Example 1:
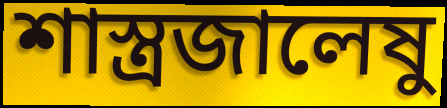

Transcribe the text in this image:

শাস্ত্রজালেষু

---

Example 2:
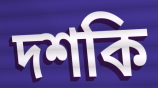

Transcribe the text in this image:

দশকি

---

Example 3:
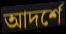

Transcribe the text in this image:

আদর্শে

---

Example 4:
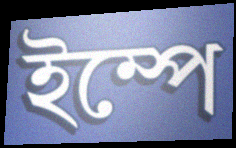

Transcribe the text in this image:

ইম্পে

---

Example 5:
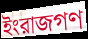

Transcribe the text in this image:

ইংরাজগণ